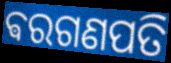
ଵରଗଣପତି